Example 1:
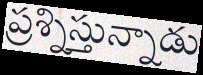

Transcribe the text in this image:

ప్రశ్నిస్తున్నాడు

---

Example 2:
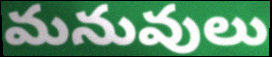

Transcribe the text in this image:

మనువులు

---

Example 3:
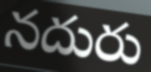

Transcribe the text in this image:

నదురు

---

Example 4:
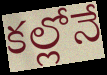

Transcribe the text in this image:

కల్లోనే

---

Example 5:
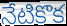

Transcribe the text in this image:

నేటికొక